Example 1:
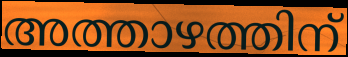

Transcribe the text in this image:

അത്താഴത്തിന്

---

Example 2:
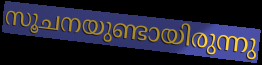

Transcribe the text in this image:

സൂചനയുണ്ടായിരുന്നു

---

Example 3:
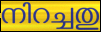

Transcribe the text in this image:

നിറച്ചതു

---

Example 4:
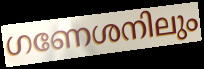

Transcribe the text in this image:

ഗണേശനിലും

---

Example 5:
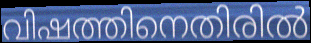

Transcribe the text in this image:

വിഷത്തിനെതിരിൽ